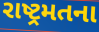
રાષ્ટ્રમતના